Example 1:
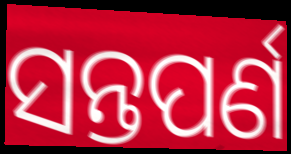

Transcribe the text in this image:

ସନ୍ତପର୍ଣ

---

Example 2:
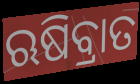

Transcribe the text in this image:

ଋଷିବ୍ରାତ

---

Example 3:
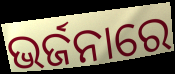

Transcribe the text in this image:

ଭର୍ଜନାରେ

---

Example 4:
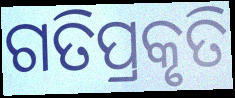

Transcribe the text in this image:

ଗତିପ୍ରକୃତି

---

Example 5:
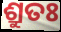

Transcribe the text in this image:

ଶ୍ରୁତଃ